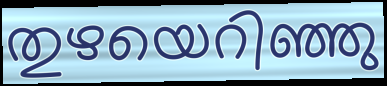
തുഴയെറിഞ്ഞു